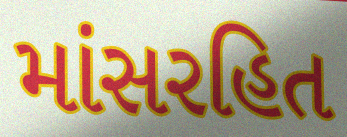
માંસરહિત